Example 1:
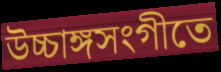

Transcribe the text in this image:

উচ্চাঙ্গসংগীতে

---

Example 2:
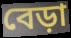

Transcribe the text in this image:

বেড়া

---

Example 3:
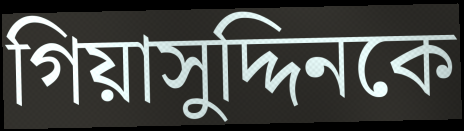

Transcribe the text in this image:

গিয়াসুদ্দিনকে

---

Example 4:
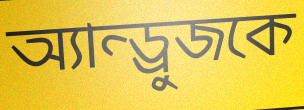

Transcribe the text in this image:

অ্যান্ড্রুজকে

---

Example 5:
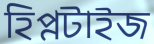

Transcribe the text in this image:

হিপ্নটাইজ